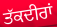
ਤੱਕਦੀਰਾਂ